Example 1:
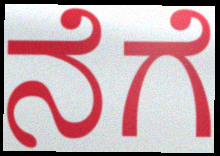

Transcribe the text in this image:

ನೆಗೆ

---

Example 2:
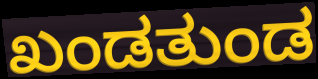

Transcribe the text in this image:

ಖಂಡತುಂಡ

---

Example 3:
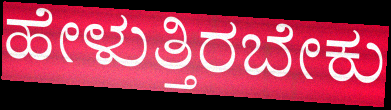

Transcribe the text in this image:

ಹೇಳುತ್ತಿರಬೇಕು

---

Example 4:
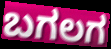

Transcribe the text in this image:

ಬಗಲಗ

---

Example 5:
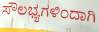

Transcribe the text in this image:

ಸೌಲಭ್ಯಗಳಿಂದಾಗಿ